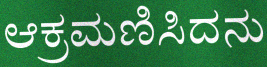
ಆಕ್ರಮಣಿಸಿದನು